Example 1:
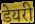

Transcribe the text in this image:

डेयरी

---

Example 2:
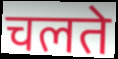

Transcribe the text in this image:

चलते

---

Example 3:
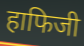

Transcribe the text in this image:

हाफिजी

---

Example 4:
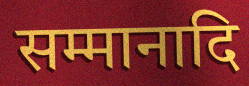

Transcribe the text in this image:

सम्मानादि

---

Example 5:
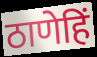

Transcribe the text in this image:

ठाणेहिं